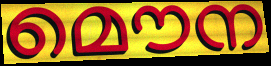
മൌന